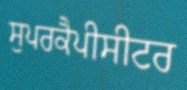
ਸੁਪਰਕੈਪੀਸੀਟਰ